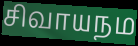
சிவாயநம